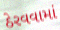
ઠેરવવામાં